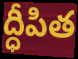
ద్ధీపిత